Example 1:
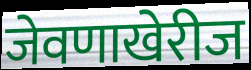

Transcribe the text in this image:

जेवणाखेरीज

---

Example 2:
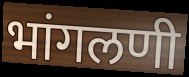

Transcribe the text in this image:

भांगलणी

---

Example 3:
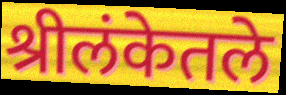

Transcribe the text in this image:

श्रीलंकेतले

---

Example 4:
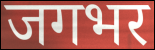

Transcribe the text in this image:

जगभर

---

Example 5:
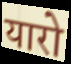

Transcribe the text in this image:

यारो